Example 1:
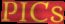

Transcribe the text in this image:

PICs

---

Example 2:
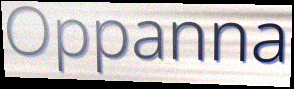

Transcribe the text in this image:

Oppanna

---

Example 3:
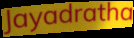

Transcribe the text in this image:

Jayadratha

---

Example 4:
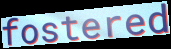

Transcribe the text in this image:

fostered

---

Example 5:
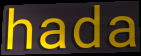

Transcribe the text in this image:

hada